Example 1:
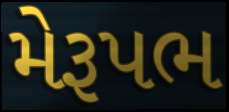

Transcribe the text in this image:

મેરૂપભ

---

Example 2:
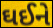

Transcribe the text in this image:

ઘઈને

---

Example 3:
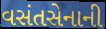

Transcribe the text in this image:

વસંતસેનાની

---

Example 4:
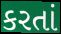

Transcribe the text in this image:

કરતાં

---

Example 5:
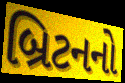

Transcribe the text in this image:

બ્રિટનનો